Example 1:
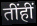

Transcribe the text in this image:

तींहीं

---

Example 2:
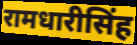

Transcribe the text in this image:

रामधारीसिंह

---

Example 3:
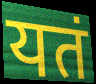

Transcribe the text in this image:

यतं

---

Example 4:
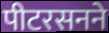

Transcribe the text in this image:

पीटरसनने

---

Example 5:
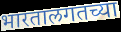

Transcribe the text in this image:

भारतालगतच्या